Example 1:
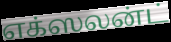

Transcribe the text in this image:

எக்ஸலன்ட்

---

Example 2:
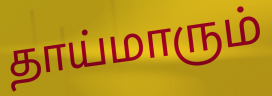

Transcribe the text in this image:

தாய்மாரும்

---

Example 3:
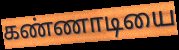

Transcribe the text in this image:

கண்ணாடியை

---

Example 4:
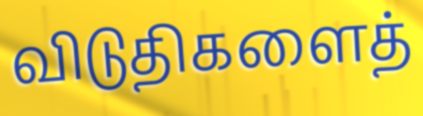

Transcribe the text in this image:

விடுதிகளைத்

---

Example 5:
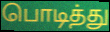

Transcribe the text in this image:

பொடித்து